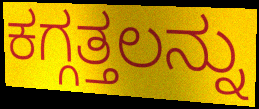
ಕಗ್ಗತ್ತಲನ್ನು